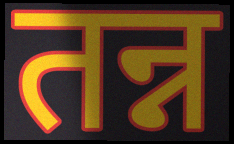
तन्न